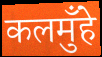
कलमुँहे